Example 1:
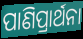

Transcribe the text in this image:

ପାଣିପ୍ରାର୍ଥନା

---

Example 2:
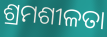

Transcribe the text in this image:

ଶ୍ରମଶୀଳତା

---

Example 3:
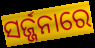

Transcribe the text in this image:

ସର୍ଜ୍ଜନାରେ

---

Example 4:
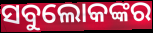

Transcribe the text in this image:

ସବୁଲୋକଙ୍କର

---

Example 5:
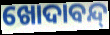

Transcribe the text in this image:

ଖୋଦାବନ୍ଦ୍